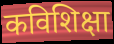
कविशिक्षा